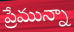
ప్రేమున్నా